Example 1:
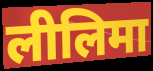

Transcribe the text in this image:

लीलिमा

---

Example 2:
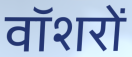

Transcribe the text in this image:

वॉशरों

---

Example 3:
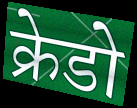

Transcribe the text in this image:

क्रेडो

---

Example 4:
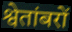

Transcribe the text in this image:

श्वेतांबरों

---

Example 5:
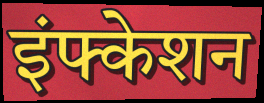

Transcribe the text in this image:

इंफ्केशन